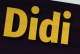
Didi